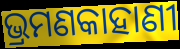
ଭ୍ରମଣକାହାଣୀ